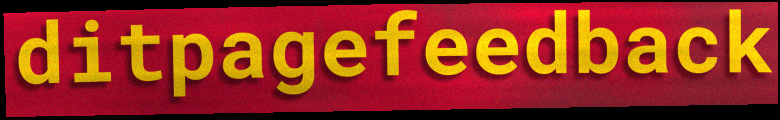
ditpagefeedback